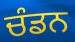
ਚੰਡਨ